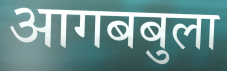
आगबबुला